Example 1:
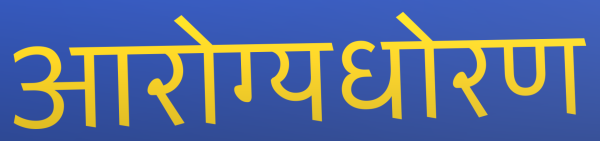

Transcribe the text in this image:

आरोग्यधोरण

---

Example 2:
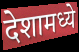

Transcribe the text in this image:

देशामध्ये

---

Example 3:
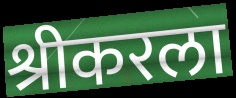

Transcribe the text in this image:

श्रीकरला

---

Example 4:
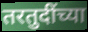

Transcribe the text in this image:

तरतुदींच्या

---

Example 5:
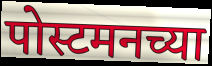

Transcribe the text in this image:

पोस्टमनच्या